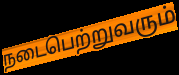
நடைபெற்றுவரும்